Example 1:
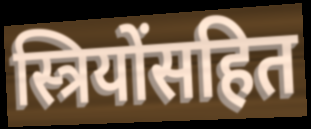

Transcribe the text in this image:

स्त्रियोंसहित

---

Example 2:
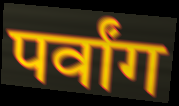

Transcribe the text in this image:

पर्वांग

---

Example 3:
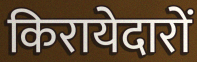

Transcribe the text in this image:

किरायेदारों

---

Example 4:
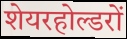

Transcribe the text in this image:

शेयरहोल्डरों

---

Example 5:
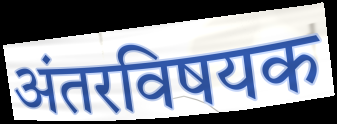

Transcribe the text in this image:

अंतरविषयक